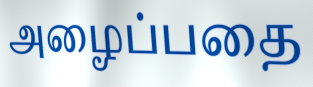
அழைப்பதை